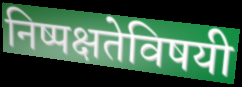
निष्पक्षतेविषयी